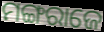
ମଙ୍ଗରାଜେ